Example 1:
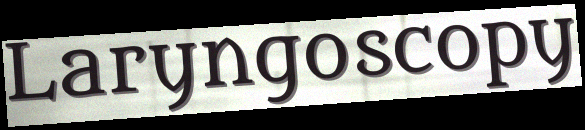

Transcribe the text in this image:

Laryngoscopy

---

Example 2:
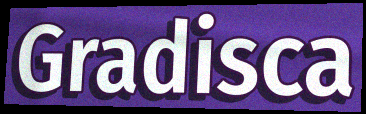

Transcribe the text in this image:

Gradisca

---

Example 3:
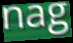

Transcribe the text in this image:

nag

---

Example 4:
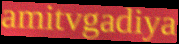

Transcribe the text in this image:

amitvgadiya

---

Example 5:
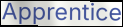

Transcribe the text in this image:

Apprentice